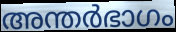
അന്തർഭാഗം